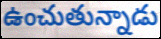
ఉంచుతున్నాడు